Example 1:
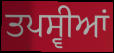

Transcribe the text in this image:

ਤਪਸ੍ਵੀਆਂ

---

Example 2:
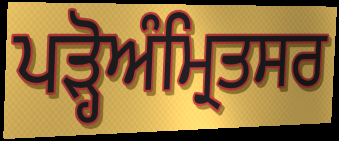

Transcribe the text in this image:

ਪੜ੍ਹੋਅੰਮ੍ਰਿਤਸਰ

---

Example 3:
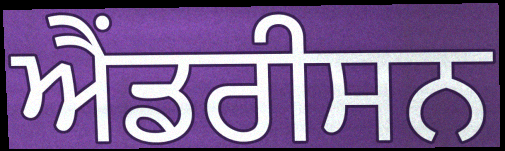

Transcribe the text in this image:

ਐਂਡਰੀਸਨ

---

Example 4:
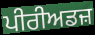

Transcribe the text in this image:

ਪੀਰੀਅਡਜ਼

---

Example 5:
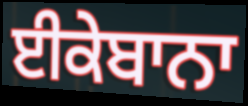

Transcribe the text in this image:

ਈਕੇਬਾਨਾ